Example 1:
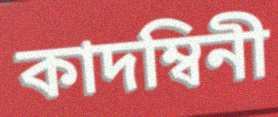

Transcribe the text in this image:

কাদম্বিনী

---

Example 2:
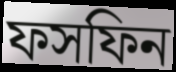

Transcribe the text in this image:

ফসফিন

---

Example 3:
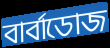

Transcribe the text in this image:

বার্বাডোজ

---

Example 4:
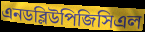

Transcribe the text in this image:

এনডব্লিউপিজিসিএল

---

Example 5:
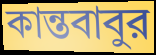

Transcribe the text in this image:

কান্তবাবুর